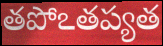
తపోఽతప్యత